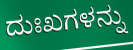
ದುಃಖಗಳನ್ನು